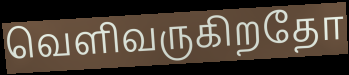
வெளிவருகிறதோ